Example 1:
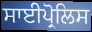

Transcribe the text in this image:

ਸਾਈਪ੍ਰੋਲਿਸ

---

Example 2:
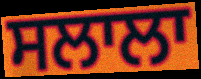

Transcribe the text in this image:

ਸਲਾਲਾ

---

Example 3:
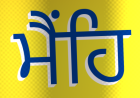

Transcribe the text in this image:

ਮੈਂਹਿ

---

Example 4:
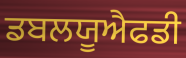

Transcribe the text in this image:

ਡਬਲਯੂਐਫਡੀ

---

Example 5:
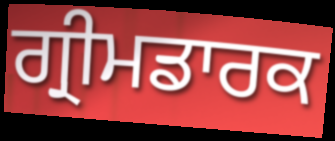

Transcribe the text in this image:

ਗ੍ਰੀਮਡਾਰਕ